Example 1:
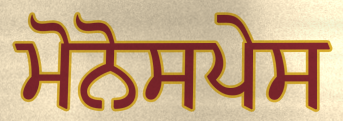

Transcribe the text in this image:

ਮੋਨੋਸਪੇਸ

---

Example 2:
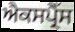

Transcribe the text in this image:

ਐਕਸਪ੍ਰੈੱਸ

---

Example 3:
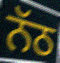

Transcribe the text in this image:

ਨੱਠ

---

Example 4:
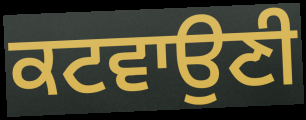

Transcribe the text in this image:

ਕਟਵਾਉਣੀ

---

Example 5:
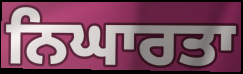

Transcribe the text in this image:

ਨਿਘਾਰਤਾ